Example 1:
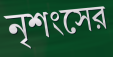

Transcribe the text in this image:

নৃশংসের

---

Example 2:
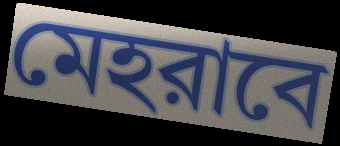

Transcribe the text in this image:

মেহরাবে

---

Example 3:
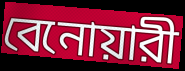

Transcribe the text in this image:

বেনোয়ারী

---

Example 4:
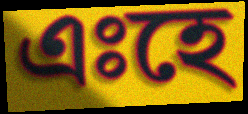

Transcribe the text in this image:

এঃহে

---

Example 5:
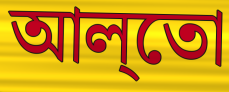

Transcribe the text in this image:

আল্‌তো